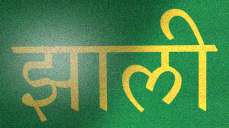
झाली